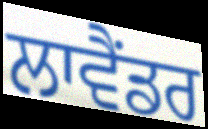
ਲਾਵੈਂਡਰ